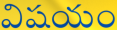
విషయం